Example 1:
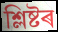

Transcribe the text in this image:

শ্লিষ্টৰ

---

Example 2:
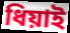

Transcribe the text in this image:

ধিয়াই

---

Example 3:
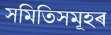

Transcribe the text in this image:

সমিতিসমূহৰ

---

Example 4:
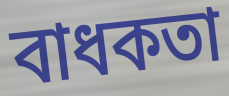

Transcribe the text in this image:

বাধকতা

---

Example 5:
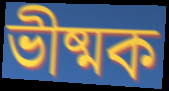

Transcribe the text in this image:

ভীষ্মক